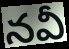
నవీ